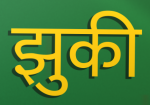
झुकी